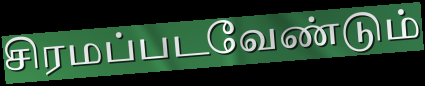
சிரமப்படவேண்டும்